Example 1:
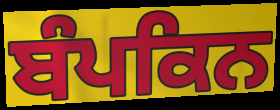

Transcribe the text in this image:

ਬੰਪਕਿਨ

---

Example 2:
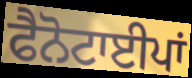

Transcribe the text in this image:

ਫੈਨੋਟਾਈਪਾਂ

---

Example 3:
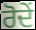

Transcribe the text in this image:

ਰੋਦੇਂ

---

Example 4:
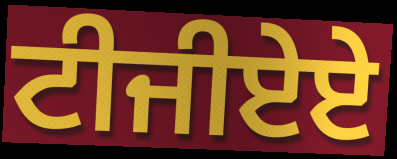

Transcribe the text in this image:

ਟੀਜੀਏਏ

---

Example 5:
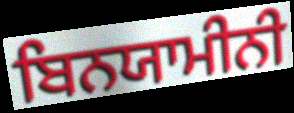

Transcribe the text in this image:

ਬਿਨਯਾਮੀਨੀ